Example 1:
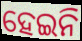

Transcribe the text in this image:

ହେଇନି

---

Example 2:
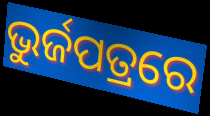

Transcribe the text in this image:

ଭୁର୍ଜପତ୍ରରେ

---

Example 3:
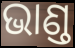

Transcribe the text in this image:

ଭାଣ୍ଡ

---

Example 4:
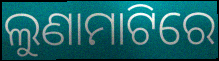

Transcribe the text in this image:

ଲୁଣାମାଟିରେ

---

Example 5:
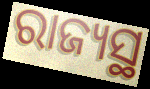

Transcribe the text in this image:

ରାଜ୍ୟସ୍ଥ